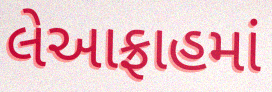
લેઆફ્રાહમાં